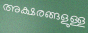
അക്ഷരങ്ങളുള്ള